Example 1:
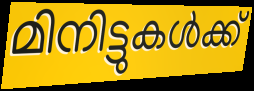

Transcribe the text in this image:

മിനിട്ടുകൾക്ക്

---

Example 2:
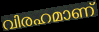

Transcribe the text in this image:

വിരഹമാണ്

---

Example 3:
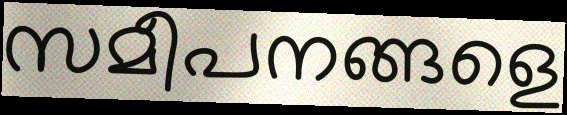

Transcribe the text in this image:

സമീപനങ്ങളെ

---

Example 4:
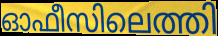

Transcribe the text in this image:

ഓഫീസിലെത്തി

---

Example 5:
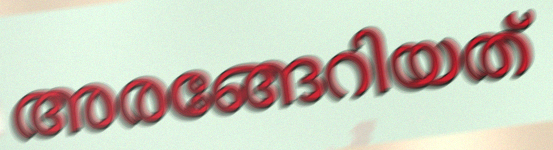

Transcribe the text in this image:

അരങ്ങേറിയത്